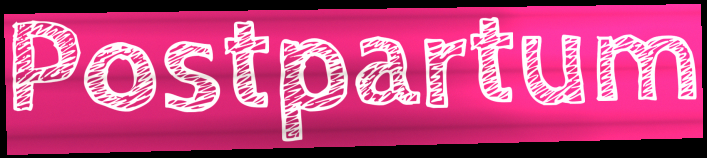
Postpartum